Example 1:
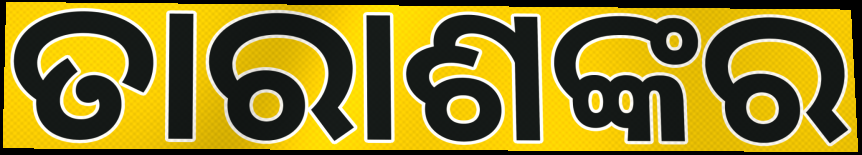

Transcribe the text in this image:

ତାରାଶଙ୍କର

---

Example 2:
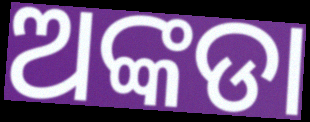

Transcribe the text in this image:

ଅଙ୍କଡା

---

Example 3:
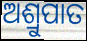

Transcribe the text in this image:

ଅଶ୍ରୁପାତ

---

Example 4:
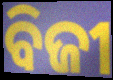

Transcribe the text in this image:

ବିଜୀ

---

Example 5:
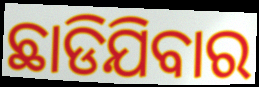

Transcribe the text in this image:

ଛାଡିଯିବାର